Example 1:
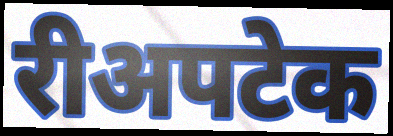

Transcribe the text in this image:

रीअपटेक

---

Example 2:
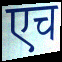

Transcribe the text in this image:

एच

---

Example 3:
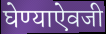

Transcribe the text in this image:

घेण्याऐवजी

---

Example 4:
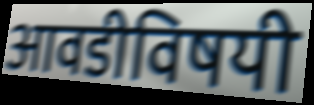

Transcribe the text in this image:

आवडीविषयी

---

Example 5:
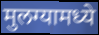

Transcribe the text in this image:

मुलग्यामध्ये